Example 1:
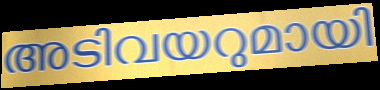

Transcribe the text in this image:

അടിവയറുമായി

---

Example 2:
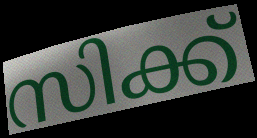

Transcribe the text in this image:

സിക്ക്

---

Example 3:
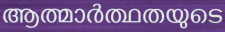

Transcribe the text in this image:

ആത്മാർത്ഥതയുടെ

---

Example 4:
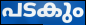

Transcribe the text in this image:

പടകും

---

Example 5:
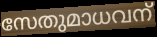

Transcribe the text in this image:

സേതുമാധവന്